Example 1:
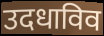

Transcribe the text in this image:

उदधाविव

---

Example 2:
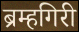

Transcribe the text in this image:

ब्रम्हगिरी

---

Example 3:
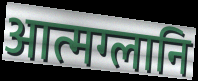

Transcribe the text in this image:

आत्मग्लानि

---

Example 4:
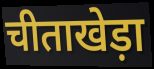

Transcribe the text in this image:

चीताखेड़ा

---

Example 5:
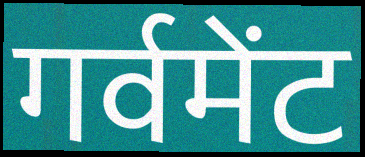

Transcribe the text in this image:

गर्वमेंट